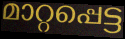
മാറ്റപ്പെട്ട